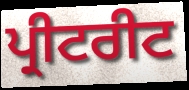
ਪ੍ਰੀਟਰੀਟ